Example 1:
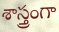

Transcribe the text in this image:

శాస్త్రంగా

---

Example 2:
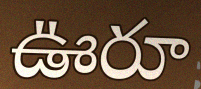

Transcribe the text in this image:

ఊరూ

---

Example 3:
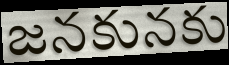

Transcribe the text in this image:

జనకునకు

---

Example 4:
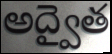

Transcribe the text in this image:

అద్వైత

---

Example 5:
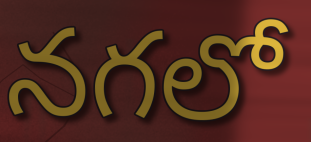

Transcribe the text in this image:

నగలో